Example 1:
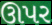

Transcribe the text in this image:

ઊપર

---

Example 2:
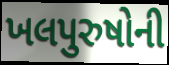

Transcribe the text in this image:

ખલપુરુષોની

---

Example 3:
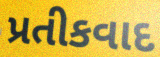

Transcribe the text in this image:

પ્રતીકવાદ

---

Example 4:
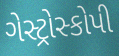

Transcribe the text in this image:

ગેસ્ટ્રોસ્કોપી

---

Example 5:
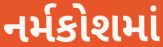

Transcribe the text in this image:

નર્મકોશમાં